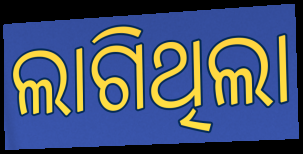
ଲାଗିଥିଲା